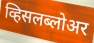
व्हिसलब्लोअर